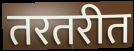
तरतरीत